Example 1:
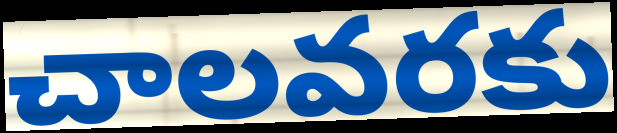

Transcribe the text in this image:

చాలవరకు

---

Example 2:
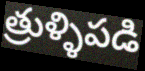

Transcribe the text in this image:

త్రుళ్ళిపడి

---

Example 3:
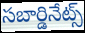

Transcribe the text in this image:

సబార్డినేట్స్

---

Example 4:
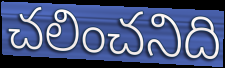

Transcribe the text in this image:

చలించనిది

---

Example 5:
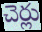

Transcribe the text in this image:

చెర్లు